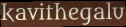
kavithegalu